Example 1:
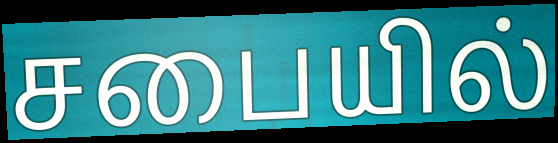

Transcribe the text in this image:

சபையில்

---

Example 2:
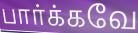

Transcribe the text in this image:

பார்க்கவே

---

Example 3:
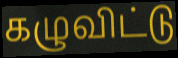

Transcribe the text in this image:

கழுவிட்டு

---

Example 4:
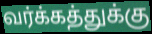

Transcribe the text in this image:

வர்க்கத்துக்கு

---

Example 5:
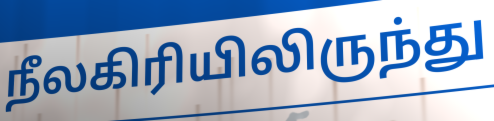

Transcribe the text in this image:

நீலகிரியிலிருந்து